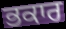
ਭਕਾਰ